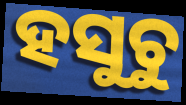
ହସୁଚୁ